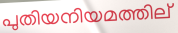
പുതിയനിയമത്തില്